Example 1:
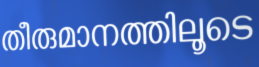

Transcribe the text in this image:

തീരുമാനത്തിലൂടെ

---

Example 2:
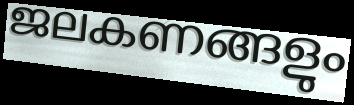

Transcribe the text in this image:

ജലകണങ്ങളും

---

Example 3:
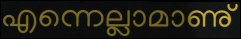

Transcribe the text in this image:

എന്നെല്ലാമാണു്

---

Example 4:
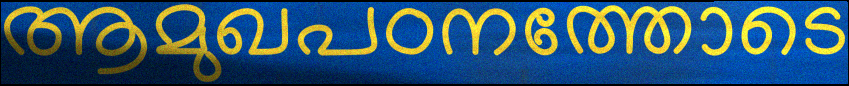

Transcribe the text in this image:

ആമുഖപഠനത്തോടെ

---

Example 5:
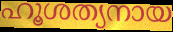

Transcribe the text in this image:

ഹൂശത്യനായ